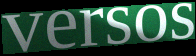
versos